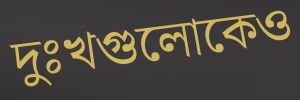
দুঃখগুলোকেও